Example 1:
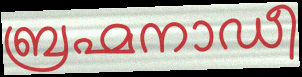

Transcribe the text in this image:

ബ്രഹ്മനാഡീ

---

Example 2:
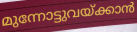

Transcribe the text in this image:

മുന്നോട്ടുവയ്ക്കാൻ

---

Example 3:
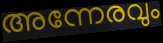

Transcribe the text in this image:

അന്നേരവും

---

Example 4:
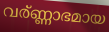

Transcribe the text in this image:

വര്ണ്ണാഭമായ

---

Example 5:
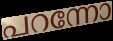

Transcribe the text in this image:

പറന്നോ